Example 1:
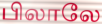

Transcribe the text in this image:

பிலாலே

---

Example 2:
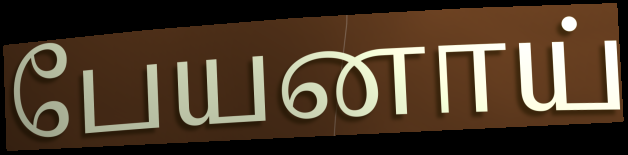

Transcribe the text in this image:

பேயனாய்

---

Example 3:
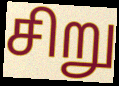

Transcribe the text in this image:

சிறு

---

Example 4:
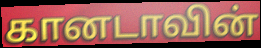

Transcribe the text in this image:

கானடாவின்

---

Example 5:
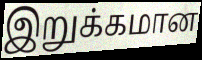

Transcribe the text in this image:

இறுக்கமான